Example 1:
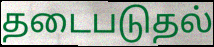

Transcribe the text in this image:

தடைபடுதல்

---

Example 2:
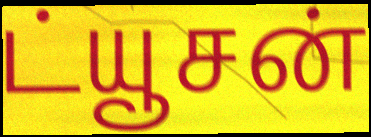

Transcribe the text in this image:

ட்யூசன்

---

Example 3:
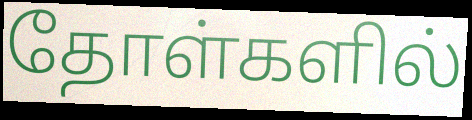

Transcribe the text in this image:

தோள்களில்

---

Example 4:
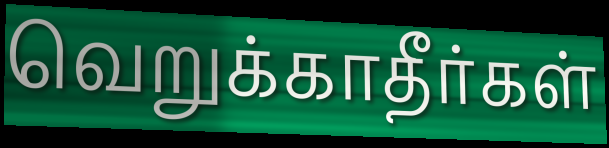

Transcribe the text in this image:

வெறுக்காதீர்கள்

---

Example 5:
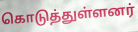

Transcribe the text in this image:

கொடுத்துள்ளனர்